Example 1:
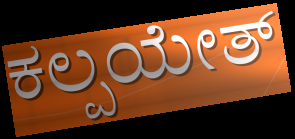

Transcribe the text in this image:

ಕಲ್ಪಯೇತ್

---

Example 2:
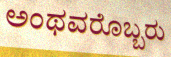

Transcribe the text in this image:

ಅಂಥವರೊಬ್ಬರು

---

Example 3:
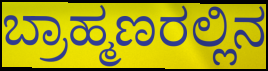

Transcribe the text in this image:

ಬ್ರಾಹ್ಮಣರಲ್ಲಿನ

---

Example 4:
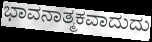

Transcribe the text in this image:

ಭಾವನಾತ್ಮಕವಾದುದು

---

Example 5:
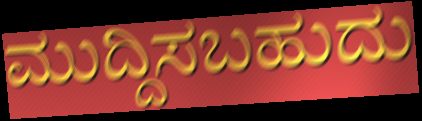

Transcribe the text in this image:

ಮುದ್ದಿಸಬಹುದು